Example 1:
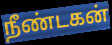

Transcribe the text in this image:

நீண்டகன்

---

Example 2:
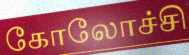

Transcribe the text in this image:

கோலோச்சி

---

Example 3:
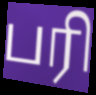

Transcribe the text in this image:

பரி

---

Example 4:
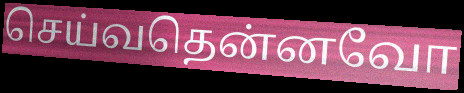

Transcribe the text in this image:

செய்வதென்னவோ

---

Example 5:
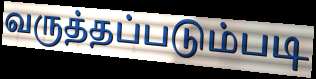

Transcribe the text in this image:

வருத்தப்படும்படி